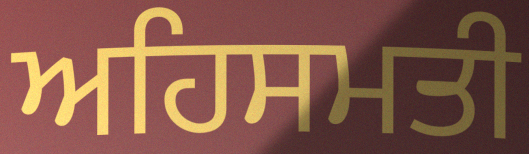
ਅਹਿਸਮਤੀ